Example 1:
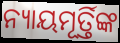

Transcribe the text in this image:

ନ୍ୟାୟମୂର୍ତ୍ତିଙ୍କ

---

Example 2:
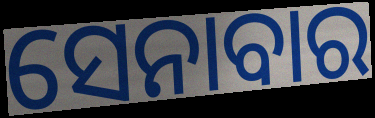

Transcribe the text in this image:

ସେନାବାର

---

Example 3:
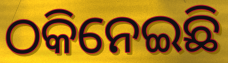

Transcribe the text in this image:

ଠକିନେଇଛି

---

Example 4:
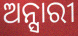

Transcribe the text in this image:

ଅନ୍ସାରୀ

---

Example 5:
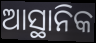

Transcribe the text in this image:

ଆସ୍ଥାନିକ